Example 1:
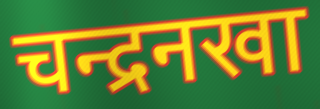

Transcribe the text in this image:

चन्द्रनखा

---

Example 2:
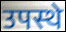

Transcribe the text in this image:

उपस्थे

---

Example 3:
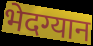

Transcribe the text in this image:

भेदग्यान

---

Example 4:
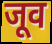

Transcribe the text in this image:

जूव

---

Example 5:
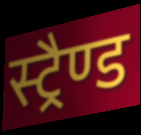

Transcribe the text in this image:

स्ट्रैण्ड